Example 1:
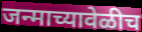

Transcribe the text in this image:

जन्माच्यावेळीच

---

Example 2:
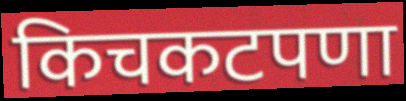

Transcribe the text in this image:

किचकटपणा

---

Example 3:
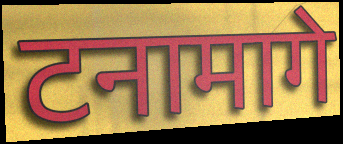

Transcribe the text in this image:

टनामागे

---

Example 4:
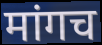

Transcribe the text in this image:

मांगच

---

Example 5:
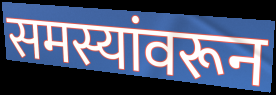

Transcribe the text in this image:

समस्यांवरून